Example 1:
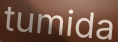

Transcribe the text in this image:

tumida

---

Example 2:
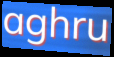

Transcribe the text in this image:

aghru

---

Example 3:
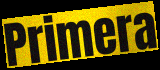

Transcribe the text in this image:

Primera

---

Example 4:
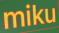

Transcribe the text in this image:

miku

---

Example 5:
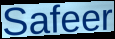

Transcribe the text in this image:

Safeer